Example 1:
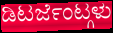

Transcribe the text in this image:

ಡಿಟರ್ಜೆಂಟ್ಗಳು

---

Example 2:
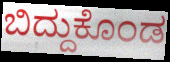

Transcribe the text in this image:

ಬಿದ್ದುಕೊಂಡ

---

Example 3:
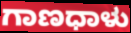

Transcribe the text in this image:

ಗಾಣಧಾಳು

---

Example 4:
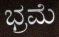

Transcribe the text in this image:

ಭ್ರಮೆ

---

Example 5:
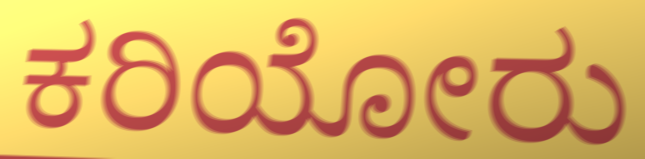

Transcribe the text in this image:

ಕರಿಯೋರು